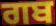
ਗਬ